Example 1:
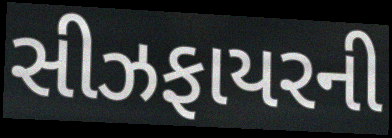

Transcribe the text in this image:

સીઝફાયરની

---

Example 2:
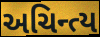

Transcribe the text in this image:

અચિન્ત્ય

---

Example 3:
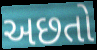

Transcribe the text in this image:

અછતો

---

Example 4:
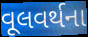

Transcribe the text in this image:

વૂલવર્થના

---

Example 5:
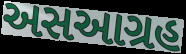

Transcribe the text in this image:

અસઆગ્રહ